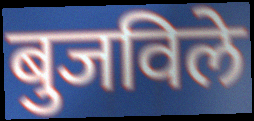
बुजविले